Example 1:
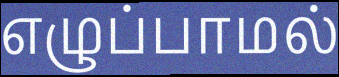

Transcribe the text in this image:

எழுப்பாமல்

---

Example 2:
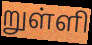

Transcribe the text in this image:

றுள்ளி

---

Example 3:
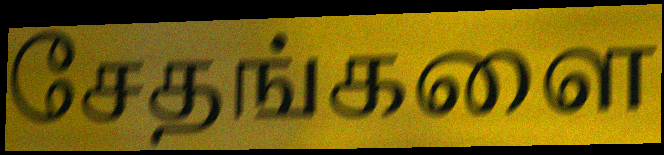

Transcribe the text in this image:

சேதங்களை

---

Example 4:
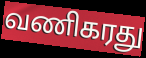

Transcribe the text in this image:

வணிகரது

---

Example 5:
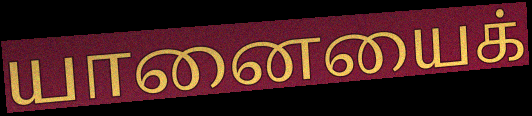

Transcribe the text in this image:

யானையைக்